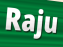
Raju